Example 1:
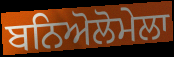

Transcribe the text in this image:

ਬਨਿਅੋਲੋਮੇਲਾ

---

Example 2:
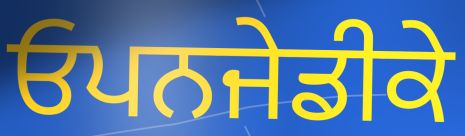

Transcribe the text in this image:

ਓਪਨਜੇਡੀਕੇ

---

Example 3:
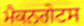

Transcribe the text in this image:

ਮੈਕਨਗੇਟਸ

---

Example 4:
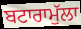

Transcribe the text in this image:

ਬਟਾਰਾਮੁੱਲਾ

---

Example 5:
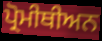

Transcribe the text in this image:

ਪ੍ਰੋਮੀਥੀਅਨ